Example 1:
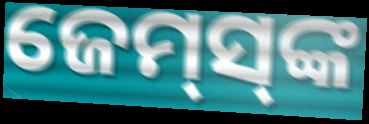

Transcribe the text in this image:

ଜେମ୍‌ସ୍‌ଙ୍କ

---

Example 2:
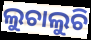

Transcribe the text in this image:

ଲୁଚାଲୁଚି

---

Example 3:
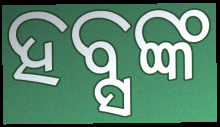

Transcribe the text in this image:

ହବ୍ସଙ୍କ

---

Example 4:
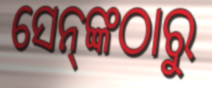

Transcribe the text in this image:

ସେନ୍‌ଙ୍କଠାରୁ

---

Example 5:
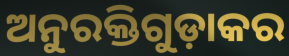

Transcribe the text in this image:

ଅନୁରକ୍ତିଗୁଡ଼ାକର